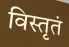
विस्तृतं